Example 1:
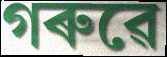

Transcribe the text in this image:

গৰুৱে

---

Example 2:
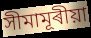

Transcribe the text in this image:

সীমামূৰীয়া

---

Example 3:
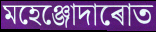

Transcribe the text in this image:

মহেঞ্জোদাৰোত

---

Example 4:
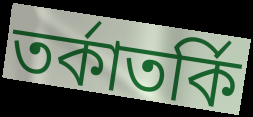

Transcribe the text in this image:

তৰ্কাতৰ্কি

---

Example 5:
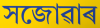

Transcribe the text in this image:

সজোৱাৰ